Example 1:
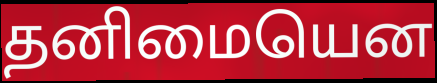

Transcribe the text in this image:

தனிமையென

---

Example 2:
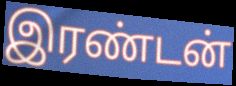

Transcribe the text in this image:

இரண்டன்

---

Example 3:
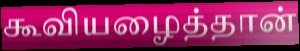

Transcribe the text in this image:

கூவியழைத்தான்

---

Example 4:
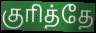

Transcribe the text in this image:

குரித்தே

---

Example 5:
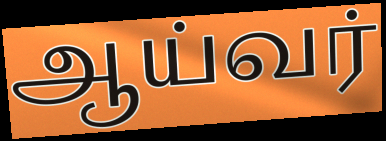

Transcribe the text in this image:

ஆய்வர்